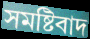
সমষ্টিবাদ